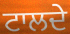
ਟਾਲਦੇ